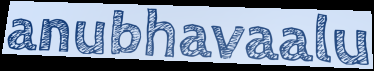
anubhavaalu